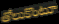
తోలుకొంటూ